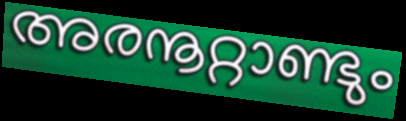
അരനൂറ്റാണ്ടും